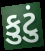
કુટું